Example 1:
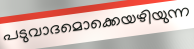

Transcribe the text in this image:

പടുവാദമൊക്കെയഴിയുന്ന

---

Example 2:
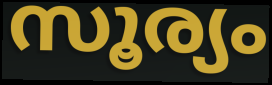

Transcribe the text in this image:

സൂര്യം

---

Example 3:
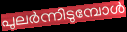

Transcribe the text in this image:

പുലർന്നിടുമ്പോൾ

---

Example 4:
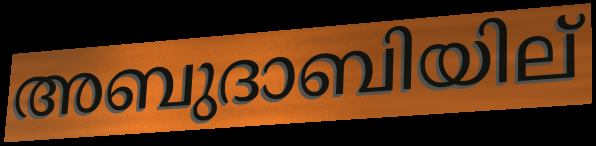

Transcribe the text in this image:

അബുദാബിയില്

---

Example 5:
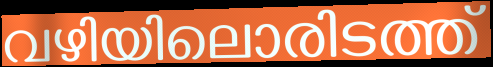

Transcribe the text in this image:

വഴിയിലൊരിടത്ത്